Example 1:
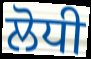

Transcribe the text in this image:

ਲੋਧੀ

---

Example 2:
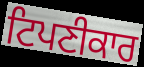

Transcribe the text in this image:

ਟਿਪਣੀਕਾਰ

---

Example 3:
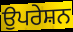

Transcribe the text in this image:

ਉਪਰੇਸ਼ਨ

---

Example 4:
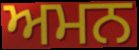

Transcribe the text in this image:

ਅਮਨ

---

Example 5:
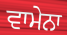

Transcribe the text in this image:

ਵਾਮੇਨਾ